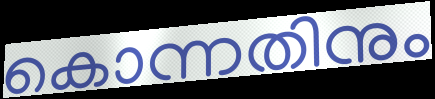
കൊന്നതിനും